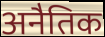
अनैतिक